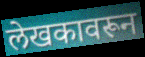
लेखकावरून